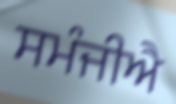
ਸਮੰਜੀਐ